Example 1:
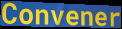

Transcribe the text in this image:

Convener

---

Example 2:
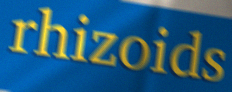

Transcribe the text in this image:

rhizoids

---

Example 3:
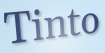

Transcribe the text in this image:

Tinto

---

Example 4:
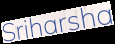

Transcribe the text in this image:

Sriharsha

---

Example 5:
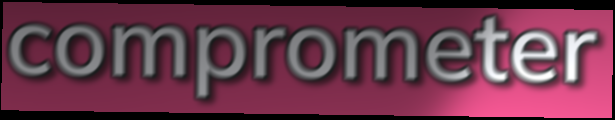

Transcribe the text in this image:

comprometer